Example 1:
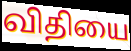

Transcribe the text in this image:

விதியை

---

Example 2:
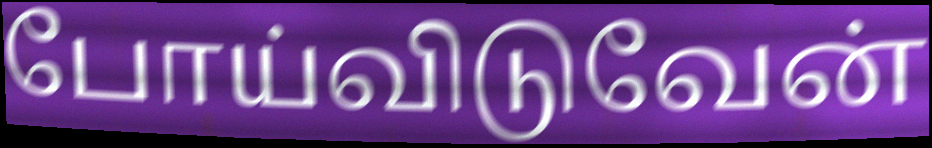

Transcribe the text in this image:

போய்விடுவேன்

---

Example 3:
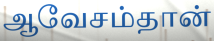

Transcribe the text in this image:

ஆவேசம்தான்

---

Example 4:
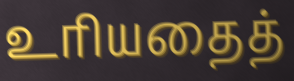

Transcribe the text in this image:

உரியதைத்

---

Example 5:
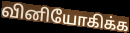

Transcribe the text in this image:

வினியோகிக்க